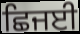
ਛਿਜਈ